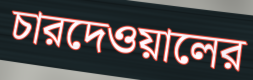
চারদেওয়ালের